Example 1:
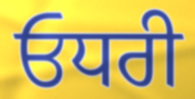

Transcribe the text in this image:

ਓਧਰੀ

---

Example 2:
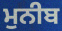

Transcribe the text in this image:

ਮੁਨੀਬ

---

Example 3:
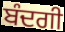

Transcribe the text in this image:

ਬੰਦਗੀ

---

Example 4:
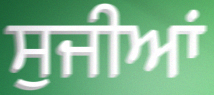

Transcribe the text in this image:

ਸੁਜੀਆਂ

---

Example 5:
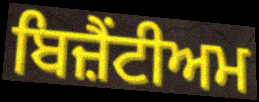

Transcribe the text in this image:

ਬਿਜ਼ੈਂਟੀਅਮ